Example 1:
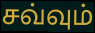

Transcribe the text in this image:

சவ்வும்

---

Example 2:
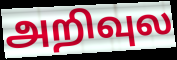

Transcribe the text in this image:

அறிவுல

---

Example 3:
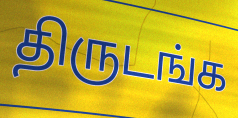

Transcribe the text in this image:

திருடங்க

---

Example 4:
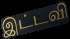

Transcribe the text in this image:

இட்டவி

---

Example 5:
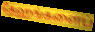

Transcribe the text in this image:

தேஹங்களைப்